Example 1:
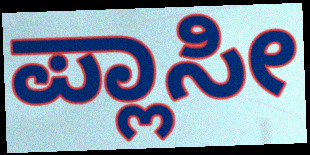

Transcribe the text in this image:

ಪ್ಲಾಸೀ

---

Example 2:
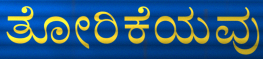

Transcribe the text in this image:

ತೋರಿಕೆಯವು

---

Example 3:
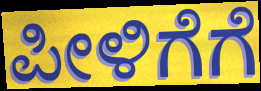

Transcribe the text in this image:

ಪೀಳಿಗೆಗೆ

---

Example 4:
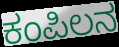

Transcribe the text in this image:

ಕಂಪಿಲನ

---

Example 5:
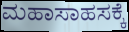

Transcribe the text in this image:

ಮಹಾಸಾಹಸಕ್ಕೆ